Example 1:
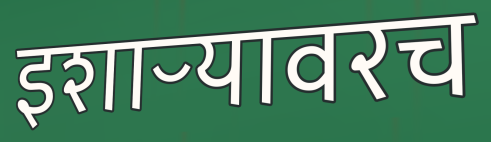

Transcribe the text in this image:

इशाऱ्यावरच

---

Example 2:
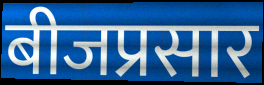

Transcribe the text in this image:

बीजप्रसार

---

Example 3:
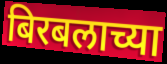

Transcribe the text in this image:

बिरबलाच्या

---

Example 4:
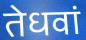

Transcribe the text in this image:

तेधवां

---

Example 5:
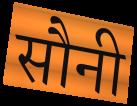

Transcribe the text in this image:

सौनी